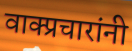
वाक्प्रचारांनी